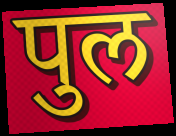
पुल